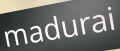
madurai